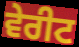
ਵੇਰੀਟ